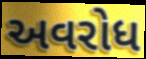
અવરોધ